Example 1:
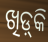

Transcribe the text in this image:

ଖିଡ଼୍‌କି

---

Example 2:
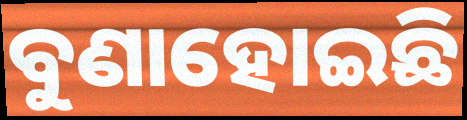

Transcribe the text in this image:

ବୁଣାହୋଇଛି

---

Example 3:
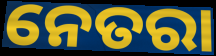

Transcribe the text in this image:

ନେତରା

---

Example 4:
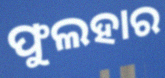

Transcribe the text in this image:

ଫୁଲହାର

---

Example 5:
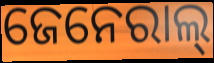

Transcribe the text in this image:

ଜେନେରାଲ୍